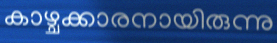
കാഴ്ചക്കാരനായിരുന്നു